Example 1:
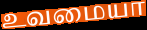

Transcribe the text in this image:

உவமையா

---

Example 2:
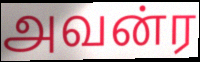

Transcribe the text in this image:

அவன்ர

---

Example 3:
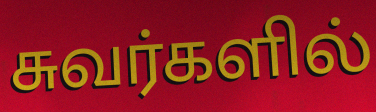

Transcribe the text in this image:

சுவர்களில்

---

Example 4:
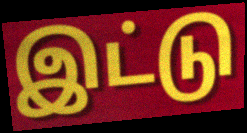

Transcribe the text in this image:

இட்டு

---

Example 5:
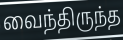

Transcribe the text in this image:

வைந்திருந்த